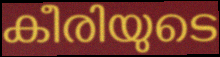
കീരിയുടെ